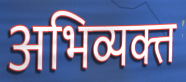
अभिव्यक्त